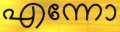
എന്നോ